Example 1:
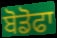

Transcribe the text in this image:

ਬੋਡੋਫਾ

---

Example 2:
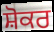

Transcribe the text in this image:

ਸ਼ੋਕਰ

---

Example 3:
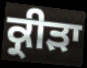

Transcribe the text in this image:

ਕ੍ਰੀੜਾ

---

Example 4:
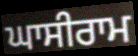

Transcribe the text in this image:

ਘਾਸੀਰਾਮ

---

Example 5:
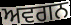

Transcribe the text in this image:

ਅਵਗਨ